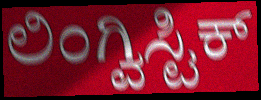
ಲಿಂಗ್ವಿಸ್ಟಿಕ್